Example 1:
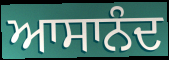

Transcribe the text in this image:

ਆਸਾਨੰਦ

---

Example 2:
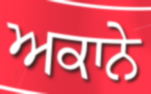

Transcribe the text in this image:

ਅਕਾਨੇ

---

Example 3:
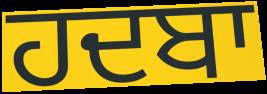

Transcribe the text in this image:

ਹਦਬਾ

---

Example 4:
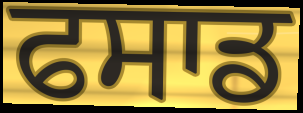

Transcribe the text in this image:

ਫਸਾਡ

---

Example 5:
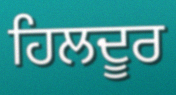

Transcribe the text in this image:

ਹਿਲਦੂਰ